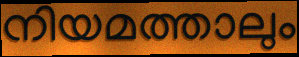
നിയമത്താലും